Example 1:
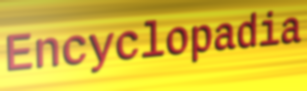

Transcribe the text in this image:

Encyclopadia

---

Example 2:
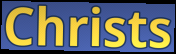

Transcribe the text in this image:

Christs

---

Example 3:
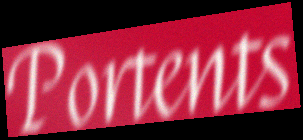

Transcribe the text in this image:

Portents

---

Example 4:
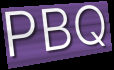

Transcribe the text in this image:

PBQ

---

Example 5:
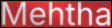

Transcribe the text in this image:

Mehtha